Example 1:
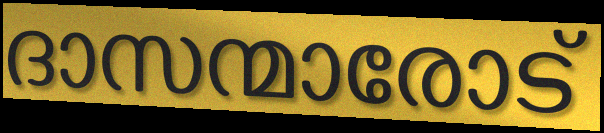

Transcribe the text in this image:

ദാസന്മാരോട്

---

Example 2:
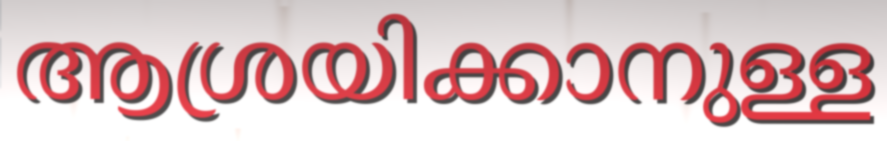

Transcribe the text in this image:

ആശ്രയിക്കാനുള്ള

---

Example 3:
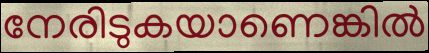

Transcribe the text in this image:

നേരിടുകയാണെങ്കിൽ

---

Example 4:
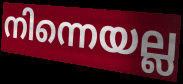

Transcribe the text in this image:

നിന്നെയല്ല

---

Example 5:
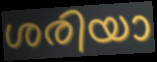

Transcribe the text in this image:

ശരിയാ